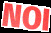
NOI